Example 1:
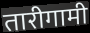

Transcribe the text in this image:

तारीगामी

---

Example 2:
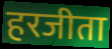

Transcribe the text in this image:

हरजीता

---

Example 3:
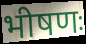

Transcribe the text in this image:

भीषणः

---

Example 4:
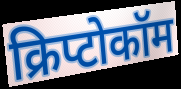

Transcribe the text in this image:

क्रिप्टोकॉम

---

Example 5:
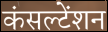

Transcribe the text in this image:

कंसल्टेंशन